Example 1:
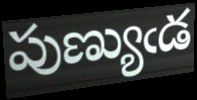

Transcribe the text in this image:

పుణ్యుఁడ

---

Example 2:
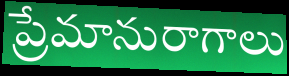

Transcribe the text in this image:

ప్రేమానురాగాలు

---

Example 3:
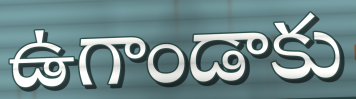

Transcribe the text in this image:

ఉగాండాకు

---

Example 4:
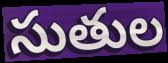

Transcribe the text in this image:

సుతుల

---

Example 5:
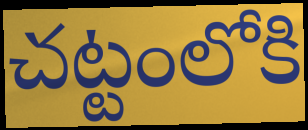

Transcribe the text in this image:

చట్టంలోకి